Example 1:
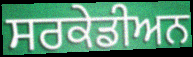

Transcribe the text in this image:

ਸਰਕੇਡੀਅਨ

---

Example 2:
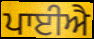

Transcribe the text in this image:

ਪਾਈਐ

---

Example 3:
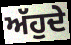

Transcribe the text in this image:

ਅੱਹੁਦੇ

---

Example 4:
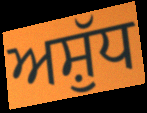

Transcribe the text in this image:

ਅਸ਼ੁੱਧ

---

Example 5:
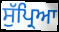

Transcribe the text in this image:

ਸੁੱਪ੍ਰਿਆ